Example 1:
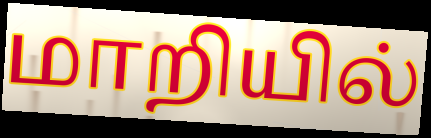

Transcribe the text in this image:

மாறியில்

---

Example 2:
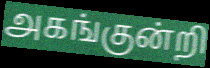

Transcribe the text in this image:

அகங்குன்றி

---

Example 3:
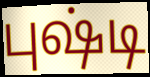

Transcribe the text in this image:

புஷ்டி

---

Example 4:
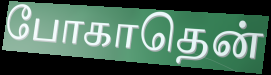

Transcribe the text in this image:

போகாதென்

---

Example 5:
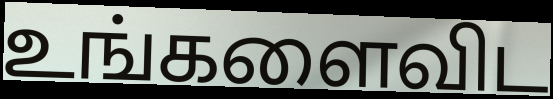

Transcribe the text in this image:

உங்களைவிட